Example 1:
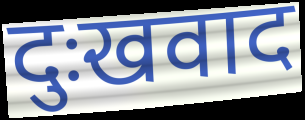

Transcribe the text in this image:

दुःखवाद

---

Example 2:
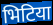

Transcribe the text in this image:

भिटिया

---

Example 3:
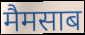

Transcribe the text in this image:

मैमसाब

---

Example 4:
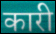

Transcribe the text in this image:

कारी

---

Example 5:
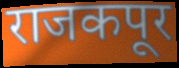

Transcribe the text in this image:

राजकपूर